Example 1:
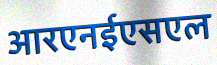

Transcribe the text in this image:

आरएनईएसएल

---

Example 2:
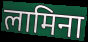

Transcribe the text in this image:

लामिना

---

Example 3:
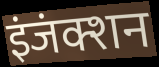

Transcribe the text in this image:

इंजंक्शन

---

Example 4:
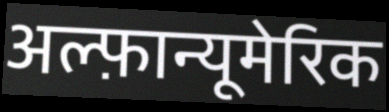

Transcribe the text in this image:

अल्फ़ान्यूमेरिक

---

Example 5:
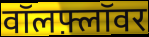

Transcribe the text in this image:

वॉलफ़्लॉवर